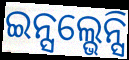
ଇନ୍ସଲ୍ଭେନ୍ସି